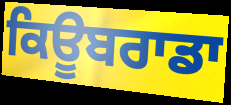
ਕਿਊਬਰਾਡਾ